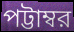
পট্টাম্বর